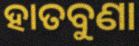
ହାତବୁଣା